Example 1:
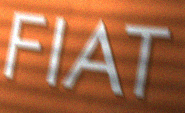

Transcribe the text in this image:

FIAT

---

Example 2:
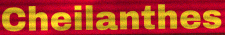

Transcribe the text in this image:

Cheilanthes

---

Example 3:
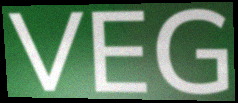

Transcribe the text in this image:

VEG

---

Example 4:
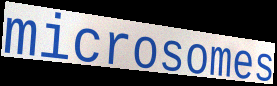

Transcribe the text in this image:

microsomes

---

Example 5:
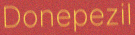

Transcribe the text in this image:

Donepezil